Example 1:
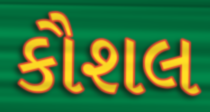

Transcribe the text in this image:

કૌશલ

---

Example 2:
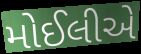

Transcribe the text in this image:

મોઈલીએ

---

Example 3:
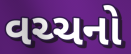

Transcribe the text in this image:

વચ્ચનો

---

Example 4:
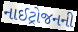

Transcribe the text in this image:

નાઈટ્રોજનની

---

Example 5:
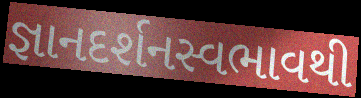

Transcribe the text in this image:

જ્ઞાનદર્શનસ્વભાવથી